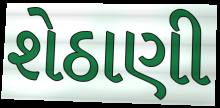
શેઠાણી